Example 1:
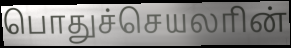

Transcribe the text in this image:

பொதுச்செயலரின்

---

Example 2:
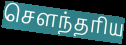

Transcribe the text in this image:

சௌந்தரிய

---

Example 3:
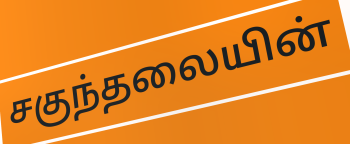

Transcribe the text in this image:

சகுந்தலையின்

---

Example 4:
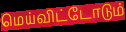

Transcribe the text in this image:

மெய்விட்டோடும்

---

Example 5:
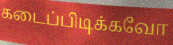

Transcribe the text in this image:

கடைப்பிடிக்கவோ